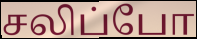
சலிப்போ